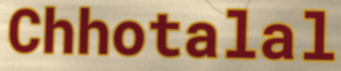
Chhotalal